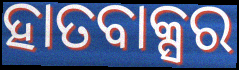
ହାତବାକ୍ସର